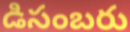
డిసంబరు